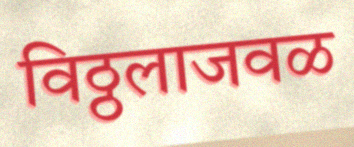
विठ्ठलाजवळ